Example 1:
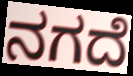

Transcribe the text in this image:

ನಗದೆ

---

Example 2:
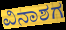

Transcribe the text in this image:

ವಿನಾಶಗ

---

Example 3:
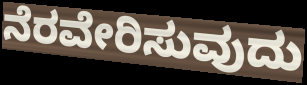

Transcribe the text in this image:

ನೆರವೇರಿಸುವುದು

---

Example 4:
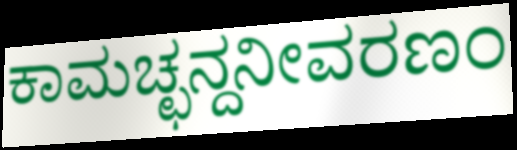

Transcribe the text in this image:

ಕಾಮಚ್ಛನ್ದನೀವರಣಂ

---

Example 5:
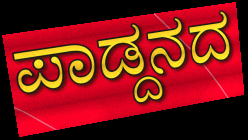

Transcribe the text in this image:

ಪಾಡ್ದನದ